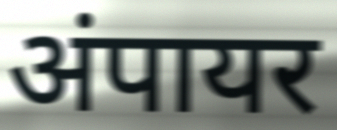
अंपायर